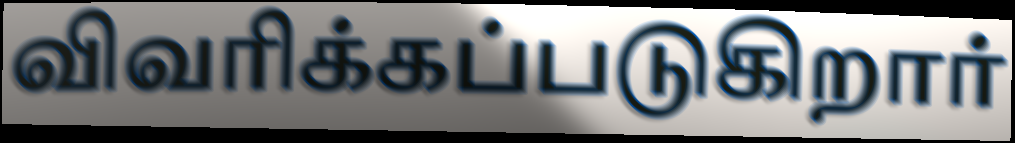
விவரிக்கப்படுகிறார்